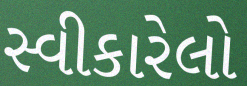
સ્વીકારેલો